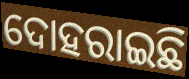
ଦୋହରାଇଛି